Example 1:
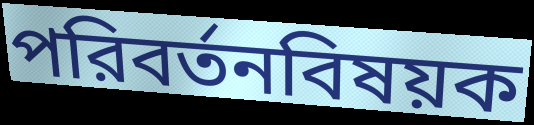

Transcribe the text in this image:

পরিবর্তনবিষয়ক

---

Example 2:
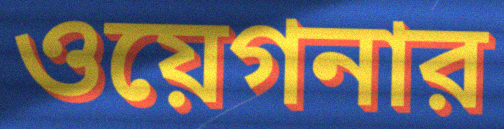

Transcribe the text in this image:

ওয়েগনার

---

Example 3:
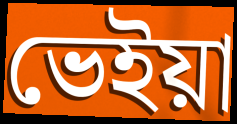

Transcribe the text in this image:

ভেইয়া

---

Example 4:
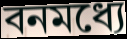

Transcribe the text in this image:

বনমধ্যে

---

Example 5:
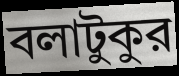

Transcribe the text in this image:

বলাটুকুর